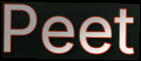
Peet